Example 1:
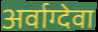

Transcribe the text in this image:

अर्वाग्देवा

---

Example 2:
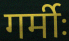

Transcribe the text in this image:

गर्मीः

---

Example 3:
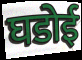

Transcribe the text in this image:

घडोई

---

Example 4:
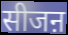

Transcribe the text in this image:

सीजऩ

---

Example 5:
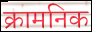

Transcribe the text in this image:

क्रामनिक